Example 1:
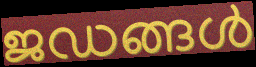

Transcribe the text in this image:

ജഡങ്ങൾ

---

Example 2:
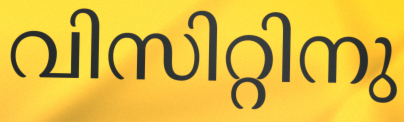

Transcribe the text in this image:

വിസിറ്റിനു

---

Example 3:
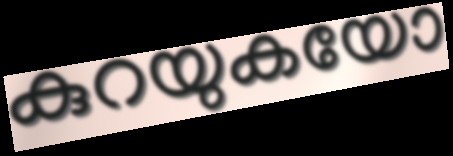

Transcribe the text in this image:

കുറയുകയോ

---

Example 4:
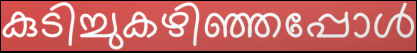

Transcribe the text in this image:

കുടിച്ചുകഴിഞ്ഞപ്പോൾ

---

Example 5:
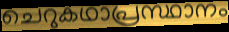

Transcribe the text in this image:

ചെറുകഥാപ്രസ്ഥാനം